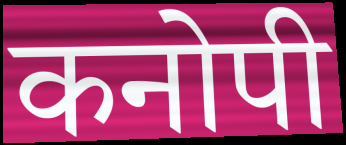
कनोपी